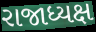
રાજાધ્યક્ષ